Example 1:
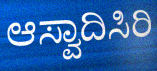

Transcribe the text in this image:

ಆಸ್ವಾದಿಸಿರಿ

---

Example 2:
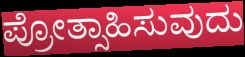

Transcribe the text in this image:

ಪ್ರೋತ್ಸಾಹಿಸುವುದು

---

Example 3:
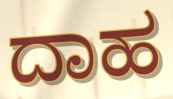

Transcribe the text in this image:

ದಾಹ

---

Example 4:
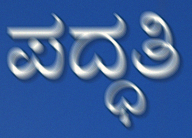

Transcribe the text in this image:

ಪದ್ಧತಿ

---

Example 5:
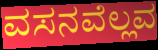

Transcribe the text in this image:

ವಸನವೆಲ್ಲವ